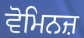
ਵੋਮਿਨਜ਼